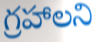
గ్రహాలని